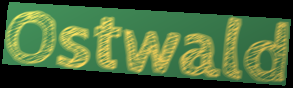
Ostwald